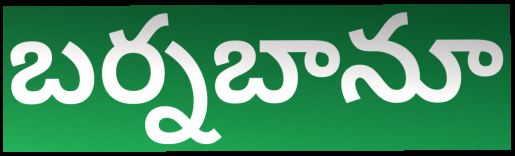
బర్నబానూ